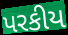
પરકીય